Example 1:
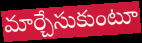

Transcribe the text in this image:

మార్చేసుకుంటూ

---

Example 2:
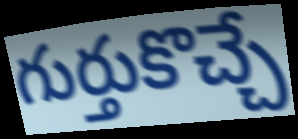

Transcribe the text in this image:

గుర్తుకొచ్చే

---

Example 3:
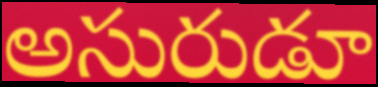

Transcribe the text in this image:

అసురుడూ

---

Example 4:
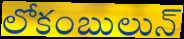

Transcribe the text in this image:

లోకంబులున్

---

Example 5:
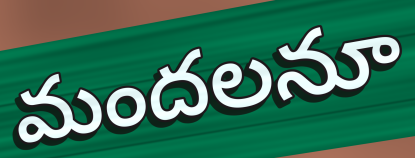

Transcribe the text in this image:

మందలనూ